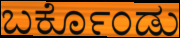
ಬರ್ಕೊಂಡು